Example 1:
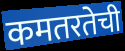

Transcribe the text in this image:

कमतरतेची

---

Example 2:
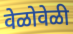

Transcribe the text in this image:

वेळोवेळी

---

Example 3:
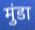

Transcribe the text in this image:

मुंडा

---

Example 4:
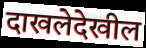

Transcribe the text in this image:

दाखलेदेखील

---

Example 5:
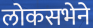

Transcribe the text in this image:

लोकसभेने